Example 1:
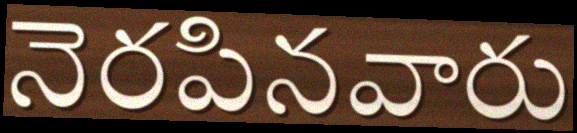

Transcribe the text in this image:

నెరపినవారు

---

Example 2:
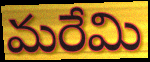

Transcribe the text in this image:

మరేమి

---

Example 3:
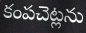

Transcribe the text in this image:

కంపచెట్లను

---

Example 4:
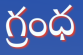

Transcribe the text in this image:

గ్రంధ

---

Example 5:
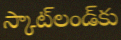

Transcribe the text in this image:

స్కాట్‌లండ్‌కు